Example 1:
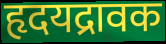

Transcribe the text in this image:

हृदयद्रावक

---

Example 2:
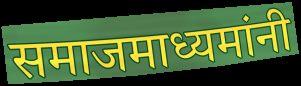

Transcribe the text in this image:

समाजमाध्यमांनी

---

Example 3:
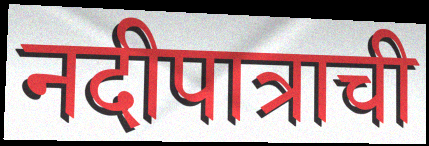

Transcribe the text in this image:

नदीपात्राची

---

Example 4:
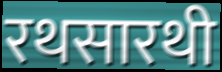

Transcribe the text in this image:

रथसारथी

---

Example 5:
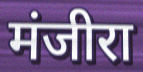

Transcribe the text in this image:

मंजीरा